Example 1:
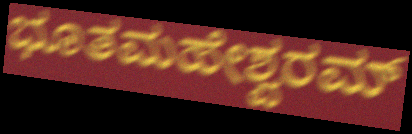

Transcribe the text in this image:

ಭೂತಮಹೇಶ್ವರಮ್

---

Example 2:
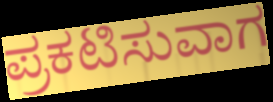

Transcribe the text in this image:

ಪ್ರಕಟಿಸುವಾಗ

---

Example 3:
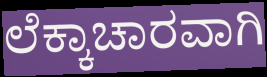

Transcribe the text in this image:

ಲೆಕ್ಕಾಚಾರವಾಗಿ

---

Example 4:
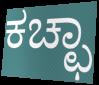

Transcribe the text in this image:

ಕಚ್ಛಾ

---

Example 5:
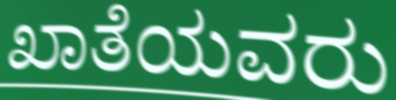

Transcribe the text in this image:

ಖಾತೆಯವರು